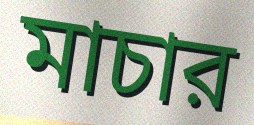
মাচার